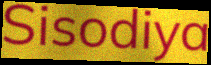
Sisodiya